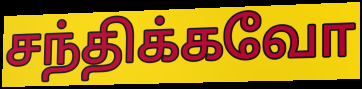
சந்திக்கவோ